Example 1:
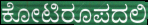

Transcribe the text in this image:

ಕೋಟಿರೂಪದಲಿ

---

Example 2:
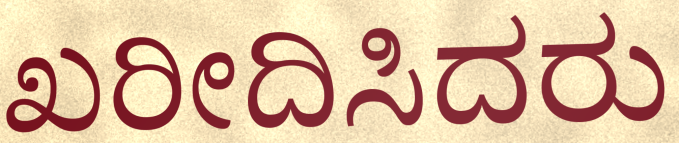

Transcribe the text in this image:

ಖರೀದಿಸಿದರು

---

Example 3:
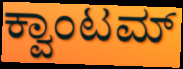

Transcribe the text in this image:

ಕ್ವಾಂಟಮ್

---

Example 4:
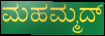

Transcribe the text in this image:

ಮಹಮ್ಮದ್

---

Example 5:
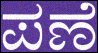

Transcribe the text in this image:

ಪಣೆ